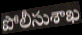
పోలీసుశాఖ